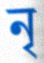
নৃ